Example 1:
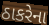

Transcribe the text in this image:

ઠાકરેના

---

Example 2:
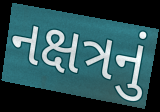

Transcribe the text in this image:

નક્ષત્રનું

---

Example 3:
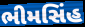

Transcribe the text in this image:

ભીમસિંહ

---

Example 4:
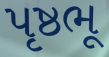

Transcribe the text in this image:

પૃષ્ઠભૂ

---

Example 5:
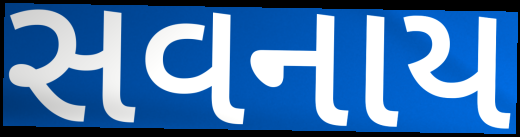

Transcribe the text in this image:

સવનાય